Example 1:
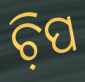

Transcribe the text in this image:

ଚ଼ିପ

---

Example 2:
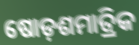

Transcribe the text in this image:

ଷୋଡ଼ଶମାତ୍ରିକ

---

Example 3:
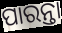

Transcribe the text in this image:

ପାରନ୍ତା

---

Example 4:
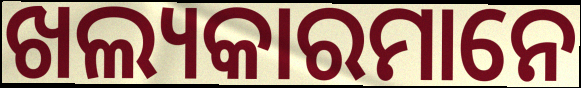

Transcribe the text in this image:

ଖଲ୍ୟକାରମାନେ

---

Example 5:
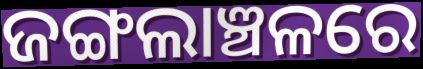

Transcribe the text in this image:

ଜଙ୍ଗଲାଞ୍ଚଳରେ